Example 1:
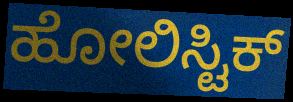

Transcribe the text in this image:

ಹೋಲಿಸ್ಟಿಕ್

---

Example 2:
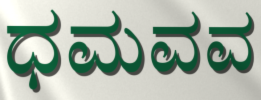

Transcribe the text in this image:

ಧಮವವ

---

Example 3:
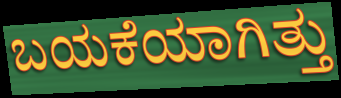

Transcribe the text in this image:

ಬಯಕೆಯಾಗಿತ್ತು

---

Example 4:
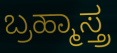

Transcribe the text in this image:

ಬ್ರಹ್ಮಾಸ್ತ್ರ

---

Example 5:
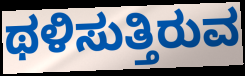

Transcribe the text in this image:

ಥಳಿಸುತ್ತಿರುವ